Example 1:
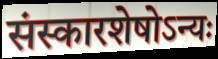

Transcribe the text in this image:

संस्कारशेषोऽन्यः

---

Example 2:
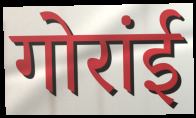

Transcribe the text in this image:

गोरांई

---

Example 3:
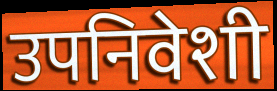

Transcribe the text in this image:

उपनिवेशी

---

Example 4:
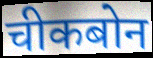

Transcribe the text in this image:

चीकबोन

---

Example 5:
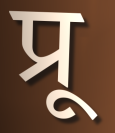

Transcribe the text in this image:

प्रू